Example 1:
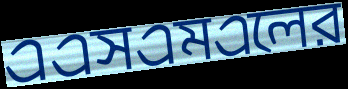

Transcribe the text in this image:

এএসএমএলের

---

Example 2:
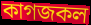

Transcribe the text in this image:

কাগজকল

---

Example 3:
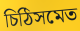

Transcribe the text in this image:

চিঠিসমেত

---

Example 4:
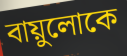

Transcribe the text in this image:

বায়ুলোকে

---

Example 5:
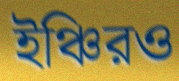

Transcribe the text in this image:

ইঞ্চিরও